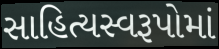
સાહિત્યસ્વરૂપોમાં